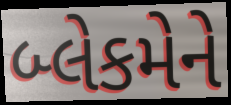
બ્લેકમેને